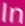
In